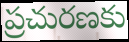
ప్రచురణకు